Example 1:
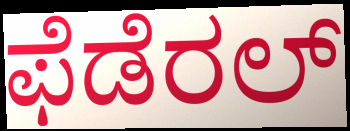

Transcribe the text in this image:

ಫೆಡೆರಲ್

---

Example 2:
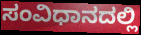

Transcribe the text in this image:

ಸಂವಿಧಾನದಲ್ಲಿ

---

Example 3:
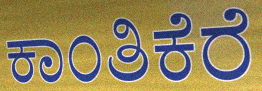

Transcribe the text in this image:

ಕಾಂತಿಕೆರೆ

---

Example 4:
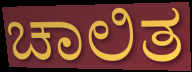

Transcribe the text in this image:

ಚಾಲಿತ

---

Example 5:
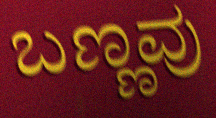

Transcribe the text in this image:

ಬಣ್ಣವು